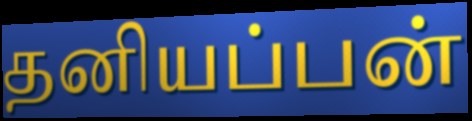
தனியப்பன்